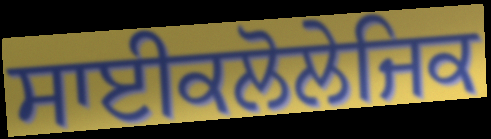
ਸਾਈਕਲੋਲੇਜਿਕ